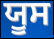
ਯੂਸ